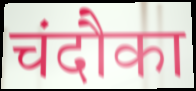
चंदौका